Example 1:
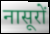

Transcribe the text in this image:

नासूरों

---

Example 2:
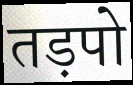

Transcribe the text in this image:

तड़पो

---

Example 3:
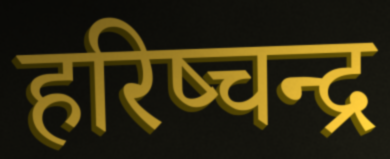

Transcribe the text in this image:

हरिष्चन्द्र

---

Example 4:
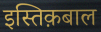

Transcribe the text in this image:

इस्तिक़बाल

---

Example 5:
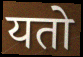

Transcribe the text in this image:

यतो